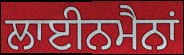
ਲਾਈਨਮੈਨਾਂ